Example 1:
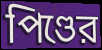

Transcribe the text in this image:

পিণ্ডের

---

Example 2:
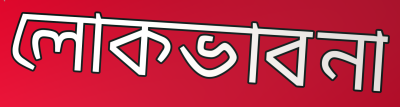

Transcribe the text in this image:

লোকভাবনা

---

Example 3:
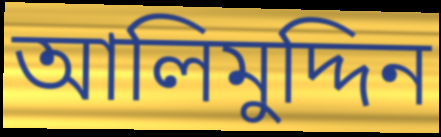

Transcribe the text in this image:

আলিমুদ্দিন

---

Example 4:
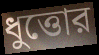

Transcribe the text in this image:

ধুত্তোর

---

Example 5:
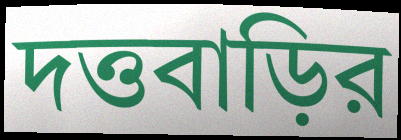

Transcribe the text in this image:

দত্তবাড়ির